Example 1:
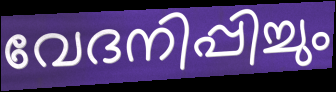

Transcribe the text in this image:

വേദനിപ്പിച്ചും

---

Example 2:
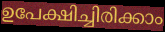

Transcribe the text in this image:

ഉപേക്ഷിച്ചിരിക്കാം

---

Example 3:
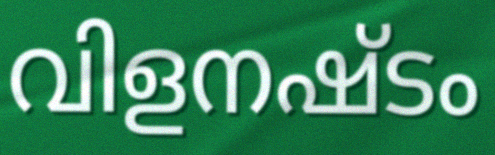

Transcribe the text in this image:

വിളനഷ്ടം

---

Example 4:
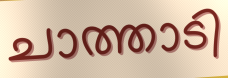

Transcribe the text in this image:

ചാത്താടി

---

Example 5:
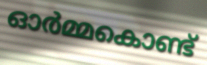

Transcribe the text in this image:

ഓർമ്മകൊണ്ട്